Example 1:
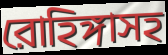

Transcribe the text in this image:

রোহিঙ্গাসহ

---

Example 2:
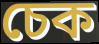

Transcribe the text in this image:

চেক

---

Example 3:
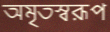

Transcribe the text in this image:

অমৃতস্বরূপ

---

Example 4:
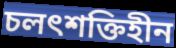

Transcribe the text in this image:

চলৎশক্তিহীন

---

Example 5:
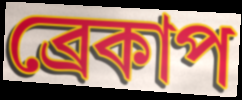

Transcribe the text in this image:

ব্রেকাপ